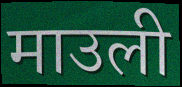
माउली